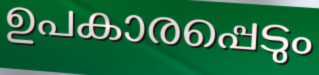
ഉപകാരപ്പെടും